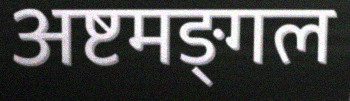
अष्टमङ्गल